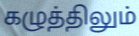
கழுத்திலும்